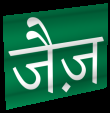
जैज़